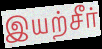
இயற்சீர்